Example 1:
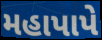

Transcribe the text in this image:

મહાપાપે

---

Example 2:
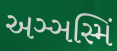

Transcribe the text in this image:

અઞ્ઞસ્મિં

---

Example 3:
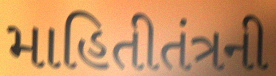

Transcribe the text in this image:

માહિતીતંત્રની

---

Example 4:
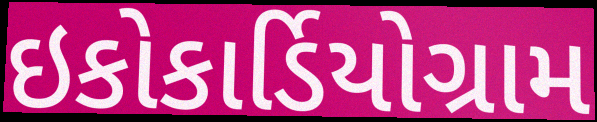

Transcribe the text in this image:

ઇકોકાર્ડિયોગ્રામ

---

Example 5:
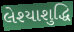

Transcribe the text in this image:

લેશ્યાશુદ્ધિ